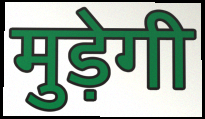
मुड़ेगी